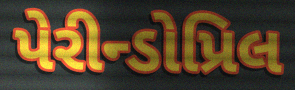
પેરીન્ડોપ્રિલ